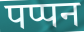
पप्पन